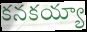
కనకయ్యా